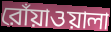
রোঁয়াওয়ালা